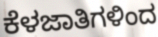
ಕೆಳಜಾತಿಗಳಿಂದ